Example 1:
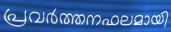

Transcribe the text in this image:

പ്രവർത്തനഫലമായി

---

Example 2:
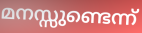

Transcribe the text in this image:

മനസ്സുണ്ടെന്ന്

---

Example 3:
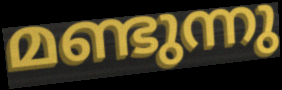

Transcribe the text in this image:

മണ്ടുന്നു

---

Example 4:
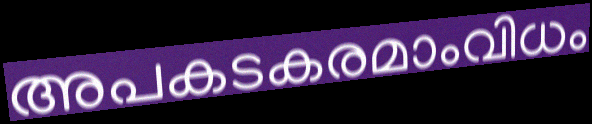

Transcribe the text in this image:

അപകടകരമാംവിധം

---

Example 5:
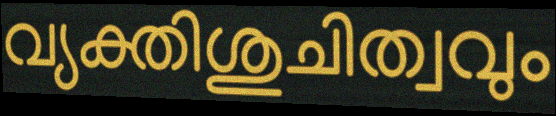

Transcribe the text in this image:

വ്യക്തിശുചിത്വവും